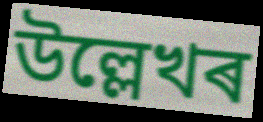
উল্লেখৰ